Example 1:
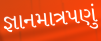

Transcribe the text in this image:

જ્ઞાનમાત્રપણું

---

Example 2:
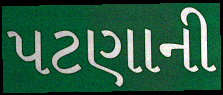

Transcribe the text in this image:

પટણાની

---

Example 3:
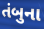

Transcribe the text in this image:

તંબુના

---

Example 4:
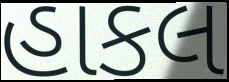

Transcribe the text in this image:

હાકલ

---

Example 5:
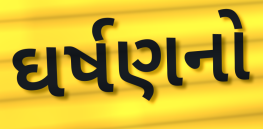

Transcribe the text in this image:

ઘર્ષણનો